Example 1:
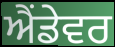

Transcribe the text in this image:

ਐਂਡੇਵਰ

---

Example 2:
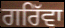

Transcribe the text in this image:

ਗਰਿੱਵਾ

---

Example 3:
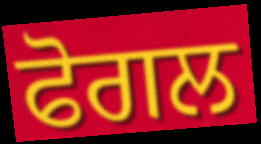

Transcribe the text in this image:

ਫੋਗਲ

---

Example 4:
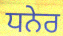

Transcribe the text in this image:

ਧਨੇਰ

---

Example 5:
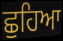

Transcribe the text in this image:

ਛੁਹਿਆ